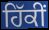
ਹਿੱਕੀਂ